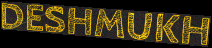
DESHMUKH